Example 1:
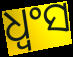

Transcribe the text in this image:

ଧ୍ୱଂସ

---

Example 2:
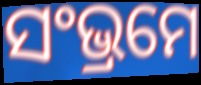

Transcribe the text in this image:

ସଂଭ୍ରମେ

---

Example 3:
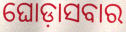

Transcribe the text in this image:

ଘୋଡ଼ାସବାର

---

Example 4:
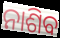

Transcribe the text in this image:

ନାଶିବ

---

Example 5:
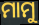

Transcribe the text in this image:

ମାମୁ